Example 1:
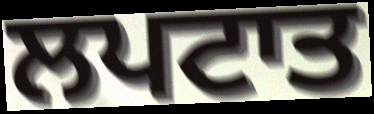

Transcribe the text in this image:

ਲਪਟਾਤ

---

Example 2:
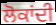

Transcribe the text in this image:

ਲੋਕਾਂਦੀ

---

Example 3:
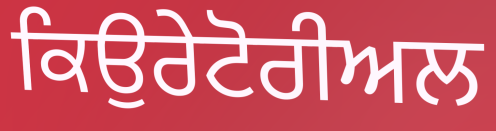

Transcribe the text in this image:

ਕਿਉਰੇਟੋਰੀਅਲ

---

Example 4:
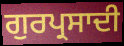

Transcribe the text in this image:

ਗੁਰਪ੍ਰਸਾਦੀ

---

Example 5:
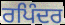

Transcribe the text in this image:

ਰਪਿੰਦਰ